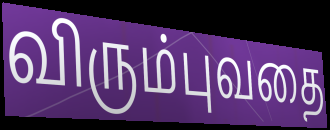
விரும்புவதை